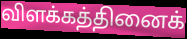
விளக்கத்தினைக்